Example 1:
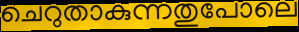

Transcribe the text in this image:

ചെറുതാകുന്നതുപോലെ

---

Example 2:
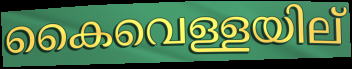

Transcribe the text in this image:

കൈവെള്ളയില്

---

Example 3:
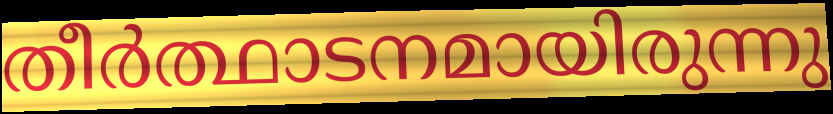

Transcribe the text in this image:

തീർത്ഥാടനമായിരുന്നു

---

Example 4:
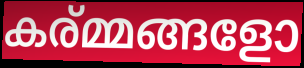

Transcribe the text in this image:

കര്മ്മങ്ങളോ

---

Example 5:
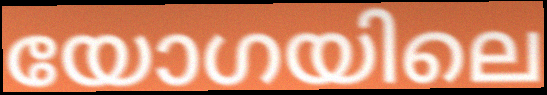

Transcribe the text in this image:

യോഗയിലെ